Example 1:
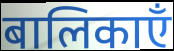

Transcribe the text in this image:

बालिकाएँ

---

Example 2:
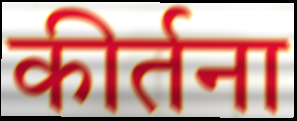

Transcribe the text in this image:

कीर्तना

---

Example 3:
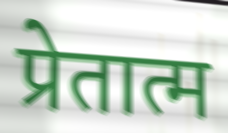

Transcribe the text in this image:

प्रेतात्म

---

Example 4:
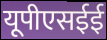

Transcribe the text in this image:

यूपीएसईई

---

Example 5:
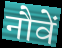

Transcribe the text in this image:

नौवें